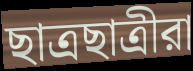
ছাত্রছাত্রীরা